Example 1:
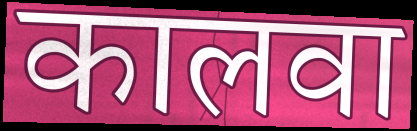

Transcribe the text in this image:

कालवा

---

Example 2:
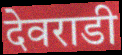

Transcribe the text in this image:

देवराडी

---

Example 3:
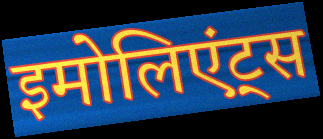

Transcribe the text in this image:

इमोलिएंट्स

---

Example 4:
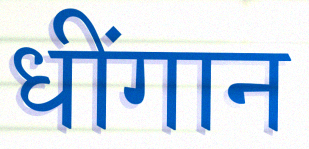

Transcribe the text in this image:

धींगान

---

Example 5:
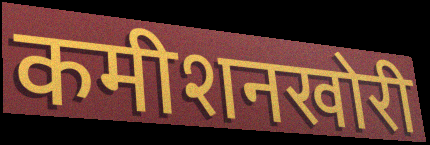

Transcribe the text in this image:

कमीशनखोरी